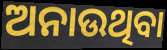
ଅନାଉଥିବା